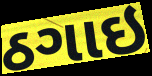
ઠગાઇ